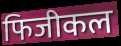
फिजीकल